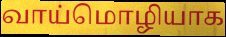
வாய்மொழியாக